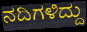
ನದಿಗಳಿದ್ದು